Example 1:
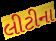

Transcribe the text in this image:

લીટીના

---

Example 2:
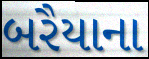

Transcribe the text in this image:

બરૈયાના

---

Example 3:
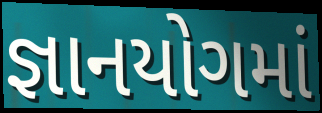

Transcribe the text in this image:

જ્ઞાનયોગમાં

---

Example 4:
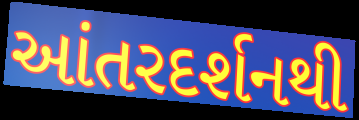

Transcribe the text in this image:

આંતરદર્શનથી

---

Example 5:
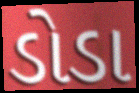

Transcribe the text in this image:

ડોડા